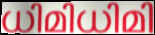
ധിമിധിമി